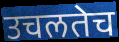
उचलतेच